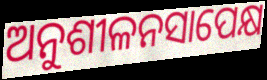
ଅନୁଶୀଳନସାପେକ୍ଷ